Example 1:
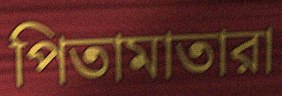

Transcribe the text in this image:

পিতামাতারা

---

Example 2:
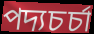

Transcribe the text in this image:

পদ্যচর্চা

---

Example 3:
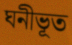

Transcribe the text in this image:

ঘনীভূত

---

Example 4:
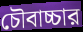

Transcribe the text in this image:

চৌবাচ্চার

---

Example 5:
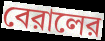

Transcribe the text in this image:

বেরালের